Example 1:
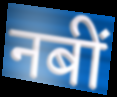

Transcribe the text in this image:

नबीं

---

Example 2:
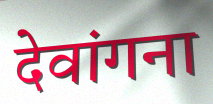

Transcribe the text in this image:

देवांगना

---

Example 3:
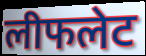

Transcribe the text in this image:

लीफलेट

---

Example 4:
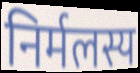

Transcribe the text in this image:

निर्मलस्य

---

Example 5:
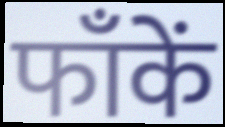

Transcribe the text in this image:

फाँकें